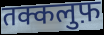
तक्कलुफ़